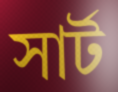
সার্ট